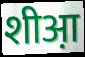
शीआ़